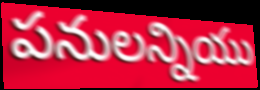
పనులన్నియు